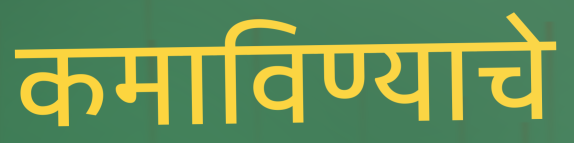
कमाविण्याचे